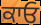
ਕਾਓ